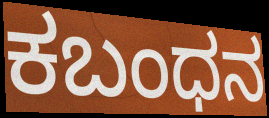
ಕಬಂಧನ